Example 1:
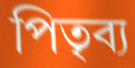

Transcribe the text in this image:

পিতৃব্য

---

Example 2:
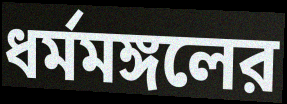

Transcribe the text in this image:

ধর্মমঙ্গলের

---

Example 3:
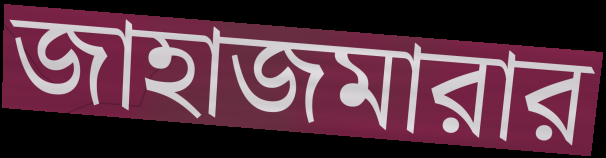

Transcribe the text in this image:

জাহাজমারার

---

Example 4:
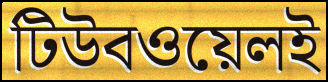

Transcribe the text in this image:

টিউবওয়েলই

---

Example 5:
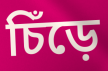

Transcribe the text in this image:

চিঁড়ে